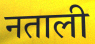
नताली